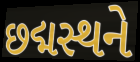
છદ્મસ્થને